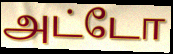
அட்டோ